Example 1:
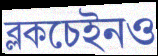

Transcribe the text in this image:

ব্লকচেইনও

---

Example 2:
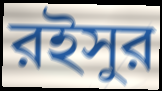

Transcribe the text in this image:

রইসুর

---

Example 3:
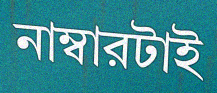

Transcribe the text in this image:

নাম্বারটাই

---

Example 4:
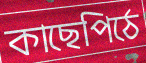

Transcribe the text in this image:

কাছেপিঠে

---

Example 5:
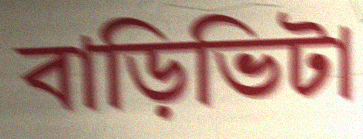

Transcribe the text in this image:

বাড়িভিটা